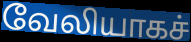
வேலியாகச்